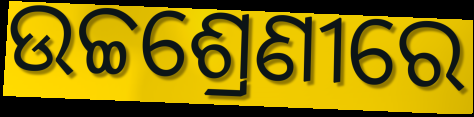
ଉଚ୍ଚଶ୍ରେଣୀରେ